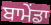
ਬਾਮੇਂਡਾ